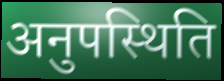
अनुपस्थिति